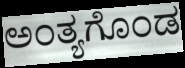
ಅಂತ್ಯಗೊಂಡ